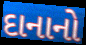
દાનાનો